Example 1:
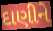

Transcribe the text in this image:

દાણીને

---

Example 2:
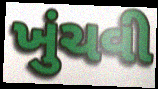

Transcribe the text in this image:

ખુંચવી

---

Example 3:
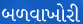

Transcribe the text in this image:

બળવાખોરી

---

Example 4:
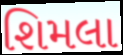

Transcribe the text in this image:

શિમલા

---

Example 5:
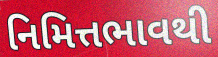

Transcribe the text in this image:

નિમિત્તભાવથી